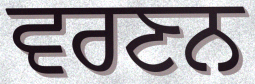
ਵਰਣਨ